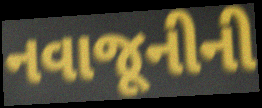
નવાજૂનીની